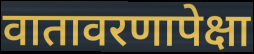
वातावरणापेक्षा